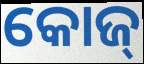
କୋଜ୍